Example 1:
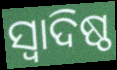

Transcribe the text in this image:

ସ୍ୱାଦିଷ୍ଠ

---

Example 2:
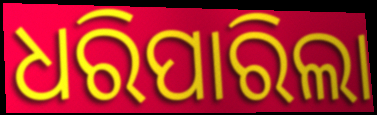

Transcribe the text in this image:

ଧରିପାରିଲା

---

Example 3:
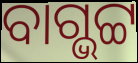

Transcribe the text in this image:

ବାଗ୍ଭଟ୍ଟ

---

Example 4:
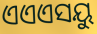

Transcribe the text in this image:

ଏଏଏସୟୁ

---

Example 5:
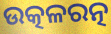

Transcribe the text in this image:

ଉତ୍କଳରତ୍ନ